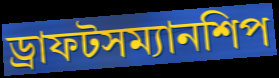
ড্রাফটসম্যানশিপ